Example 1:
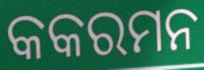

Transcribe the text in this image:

କକରମନ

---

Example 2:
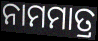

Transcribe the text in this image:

ନାମମାତ୍ର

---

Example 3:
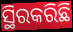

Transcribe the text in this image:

ସ୍ଥିରକରିଛି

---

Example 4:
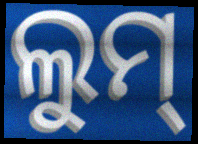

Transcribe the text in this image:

ଲୁମ୍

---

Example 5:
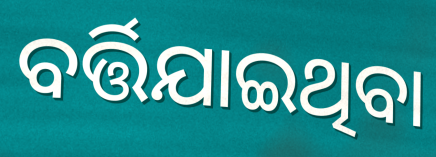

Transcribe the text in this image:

ବର୍ତ୍ତିଯାଇଥିବା